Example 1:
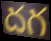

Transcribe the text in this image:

దగ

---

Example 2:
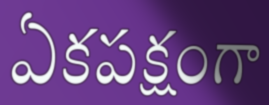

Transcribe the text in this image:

ఏకపక్షంగా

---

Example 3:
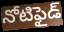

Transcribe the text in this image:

నోటిఫైడ్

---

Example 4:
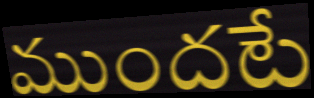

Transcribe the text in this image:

ముందటే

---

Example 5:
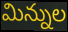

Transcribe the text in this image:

మిన్నుల